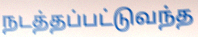
நடத்தப்பட்டுவந்த